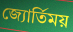
জ্যোর্তিময়